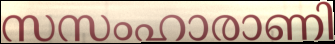
സസംഹാരാണി